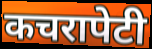
कचरापेटी